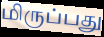
மிருப்பது